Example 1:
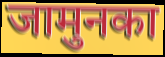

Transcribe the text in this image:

जामुनका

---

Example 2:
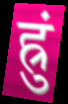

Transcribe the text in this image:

ह्रुं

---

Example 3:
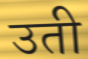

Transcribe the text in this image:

उती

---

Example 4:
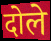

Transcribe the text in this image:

दोले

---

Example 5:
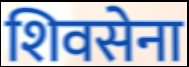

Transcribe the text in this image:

शिवसेना